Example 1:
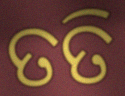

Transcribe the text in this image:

ତତି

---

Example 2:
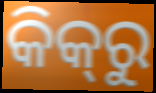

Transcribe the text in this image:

କିକ୍‍ରୁ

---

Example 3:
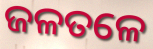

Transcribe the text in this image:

ଜଳତଳେ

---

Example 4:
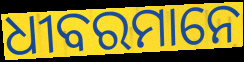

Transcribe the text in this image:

ଧୀବରମାନେ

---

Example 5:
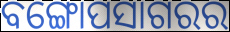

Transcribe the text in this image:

ବଙ୍ଗୋପସାଗରର